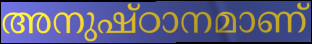
അനുഷ്ഠാനമാണ്